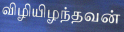
விழியிழந்தவன்